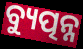
ବ୍ୟୁତ୍ପନ୍ନ